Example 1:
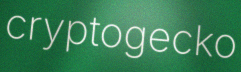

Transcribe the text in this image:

cryptogecko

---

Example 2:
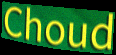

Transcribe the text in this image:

Choud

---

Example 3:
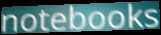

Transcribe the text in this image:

notebooks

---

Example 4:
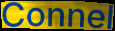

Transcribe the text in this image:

Connel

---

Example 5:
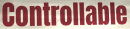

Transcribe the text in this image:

Controllable